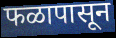
फळापासून